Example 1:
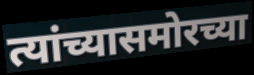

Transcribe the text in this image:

त्यांच्यासमोरच्या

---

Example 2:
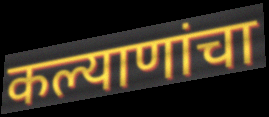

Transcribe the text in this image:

कल्याणांचा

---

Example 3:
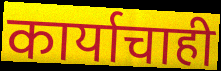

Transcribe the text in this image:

कार्याचाही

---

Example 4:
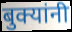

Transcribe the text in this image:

बुक्यांनी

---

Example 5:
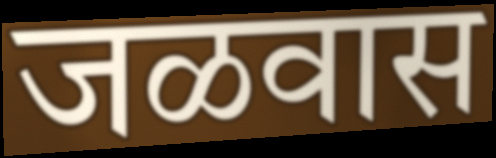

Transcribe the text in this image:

जळवास